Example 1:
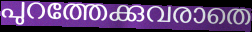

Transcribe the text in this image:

പുറത്തേക്കുവരാതെ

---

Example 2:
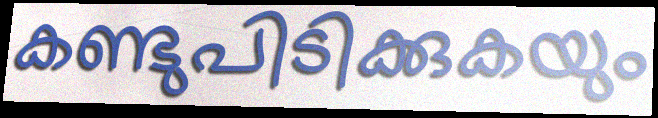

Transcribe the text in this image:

കണ്ടുപിടിക്കുകയും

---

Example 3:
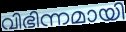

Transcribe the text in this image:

വിഭിന്നമായി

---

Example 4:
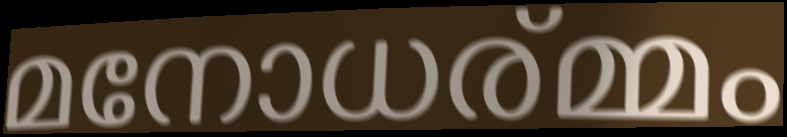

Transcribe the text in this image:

മനോധര്മ്മം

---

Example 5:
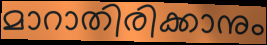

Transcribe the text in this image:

മാറാതിരിക്കാനും